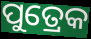
ପୁତ୍ରେକ